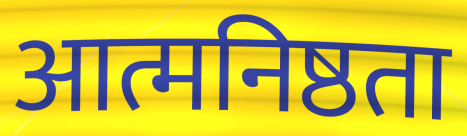
आत्मनिष्ठता